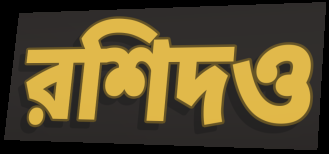
রশিদও